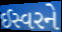
ઈસ્વરને